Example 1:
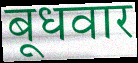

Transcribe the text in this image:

बूधवार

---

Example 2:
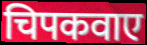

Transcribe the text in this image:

चिपकवाए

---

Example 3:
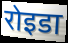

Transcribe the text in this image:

रोइडा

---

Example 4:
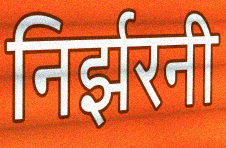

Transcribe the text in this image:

निर्झरनी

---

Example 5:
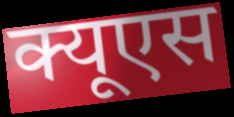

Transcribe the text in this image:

क्यूएस